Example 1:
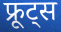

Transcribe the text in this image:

फ्रूट्स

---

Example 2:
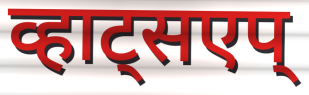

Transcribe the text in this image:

व्हाट्सएप्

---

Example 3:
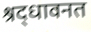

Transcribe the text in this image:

श्रद्धावनत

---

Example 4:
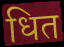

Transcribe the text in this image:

धित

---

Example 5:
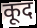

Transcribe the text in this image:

कूद